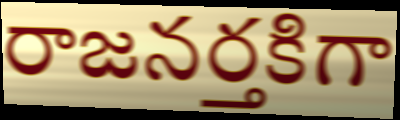
రాజనర్తకిగా